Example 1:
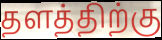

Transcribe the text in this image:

தளத்திற்கு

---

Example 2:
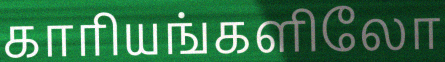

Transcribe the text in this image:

காரியங்களிலோ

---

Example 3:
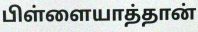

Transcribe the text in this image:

பிள்ளையாத்தான்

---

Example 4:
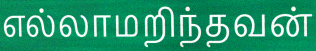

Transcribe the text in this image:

எல்லாமறிந்தவன்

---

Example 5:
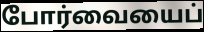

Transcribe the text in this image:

போர்வையைப்